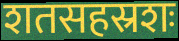
शतसहस्रशः